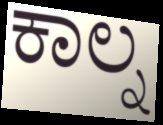
ಕಾಲ್ನ